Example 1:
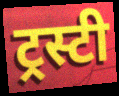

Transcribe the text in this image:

ट्रस्टी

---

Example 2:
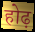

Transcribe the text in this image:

होढ़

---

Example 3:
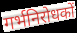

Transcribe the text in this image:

गर्भनिरोधकों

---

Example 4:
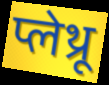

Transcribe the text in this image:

प्लेथ्रू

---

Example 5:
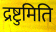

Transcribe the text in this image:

द्रष्टुमिति